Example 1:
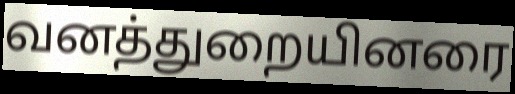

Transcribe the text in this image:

வனத்துறையினரை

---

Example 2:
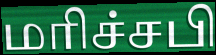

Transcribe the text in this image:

மரிச்சபி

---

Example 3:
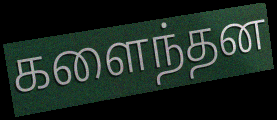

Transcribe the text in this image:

களைந்தன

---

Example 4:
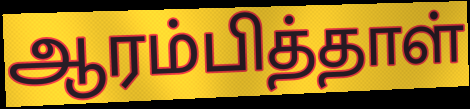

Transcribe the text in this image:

ஆரம்பித்தாள்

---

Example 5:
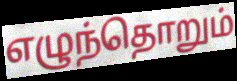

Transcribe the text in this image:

எழுந்தொறும்